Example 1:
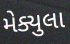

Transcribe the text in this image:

મેક્યુલા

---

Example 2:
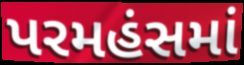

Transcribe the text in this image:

પરમહંસમાં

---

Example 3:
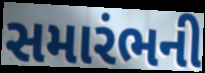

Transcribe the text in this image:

સમારંભની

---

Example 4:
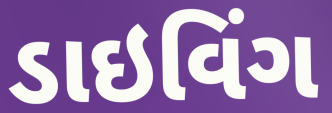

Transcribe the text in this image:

ડાઇવિંગ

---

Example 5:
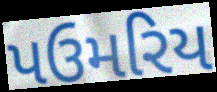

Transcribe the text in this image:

પઉમરિય